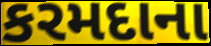
કરમદાના